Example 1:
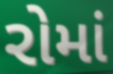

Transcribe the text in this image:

રોમાં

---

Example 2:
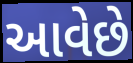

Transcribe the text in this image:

આવેછે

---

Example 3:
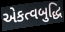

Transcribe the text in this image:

એકત્વબુદ્ધિ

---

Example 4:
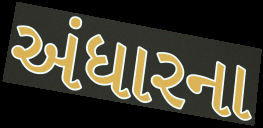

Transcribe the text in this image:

અંધારના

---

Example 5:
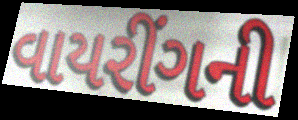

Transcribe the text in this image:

વાયરીંગની